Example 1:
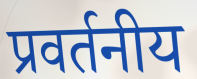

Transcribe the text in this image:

प्रवर्तनीय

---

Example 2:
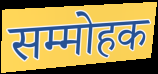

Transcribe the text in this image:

सम्मोहक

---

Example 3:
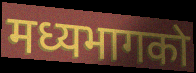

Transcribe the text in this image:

मध्यभागको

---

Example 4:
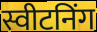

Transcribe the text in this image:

स्वीटनिंग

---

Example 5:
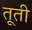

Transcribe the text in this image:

तूती